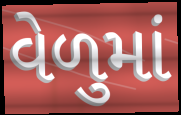
વેળુમાં